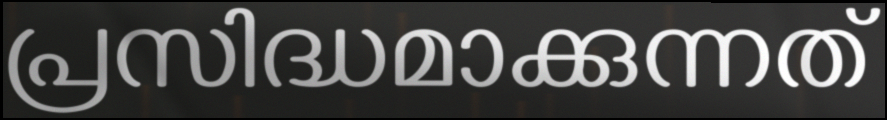
പ്രസിദ്ധമാക്കുന്നത്